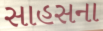
સાહસના